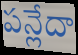
పన్లేదా